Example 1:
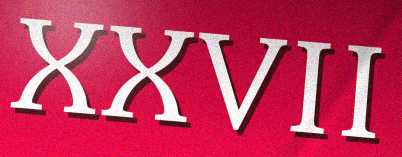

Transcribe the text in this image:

XXVII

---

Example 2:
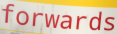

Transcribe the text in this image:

forwards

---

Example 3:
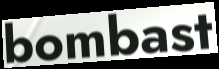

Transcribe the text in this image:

bombast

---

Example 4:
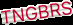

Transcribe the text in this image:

TNGBRS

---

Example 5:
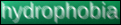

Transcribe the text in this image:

hydrophobia